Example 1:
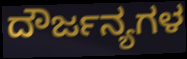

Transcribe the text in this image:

ದೌರ್ಜನ್ಯಗಳ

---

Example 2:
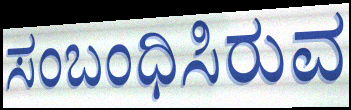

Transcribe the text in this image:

ಸಂಬಂಧಿಸಿರುವ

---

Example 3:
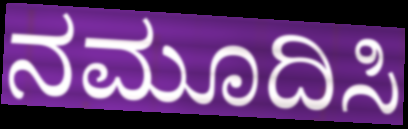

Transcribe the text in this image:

ನಮೂದಿಸಿ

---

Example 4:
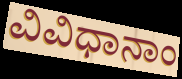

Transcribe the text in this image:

ವಿವಿಧಾನಾಂ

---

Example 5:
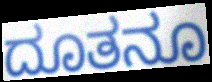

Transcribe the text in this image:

ದೂತನೂ